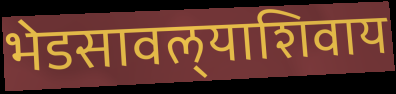
भेडसावल्याशिवाय